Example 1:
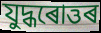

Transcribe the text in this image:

যুদ্ধৰোত্তৰ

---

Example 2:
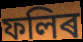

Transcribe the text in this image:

ফলিৰ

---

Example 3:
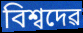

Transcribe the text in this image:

বিশ্বদেৱ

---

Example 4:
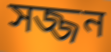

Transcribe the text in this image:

সজ্জন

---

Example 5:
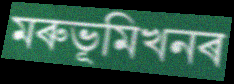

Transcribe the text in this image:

মৰুভূমিখনৰ